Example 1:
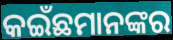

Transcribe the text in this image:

କଇଁଛମାନଙ୍କର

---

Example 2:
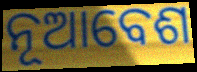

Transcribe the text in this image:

ନୂଆବେଶ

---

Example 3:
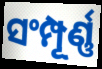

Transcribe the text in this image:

ସଂମ୍ପୂର୍ଣ୍ଣ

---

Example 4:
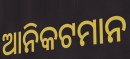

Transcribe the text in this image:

ଆନିକଟମାନ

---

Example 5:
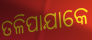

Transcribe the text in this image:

ତଳିପାଯାକେ